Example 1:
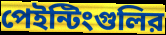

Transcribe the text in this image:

পেইন্টিংগুলির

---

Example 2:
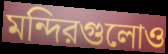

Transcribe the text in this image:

মন্দিরগুলোও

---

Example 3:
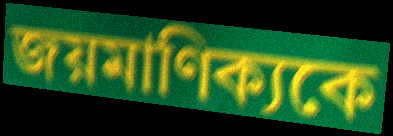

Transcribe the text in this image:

জয়মাণিক্যকে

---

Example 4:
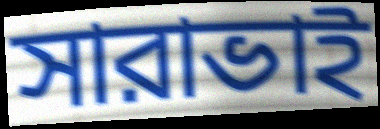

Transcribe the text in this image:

সারাভাই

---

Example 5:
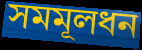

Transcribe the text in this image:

সমমূলধন